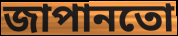
জাপানতো